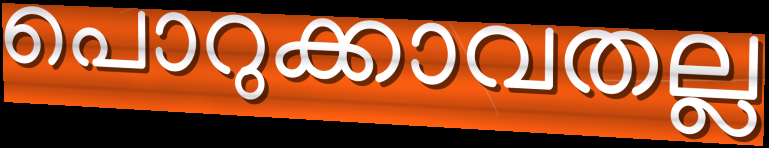
പൊറുക്കാവതല്ല